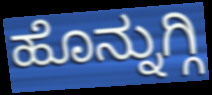
ಹೊನ್ನುಗ್ಗಿ